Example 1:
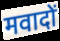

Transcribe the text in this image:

मवादों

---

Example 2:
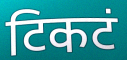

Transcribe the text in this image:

टिकटं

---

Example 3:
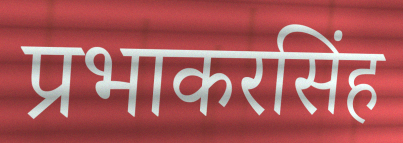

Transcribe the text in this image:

प्रभाकरसिंह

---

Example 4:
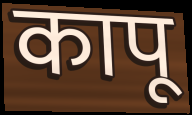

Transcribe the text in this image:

कापू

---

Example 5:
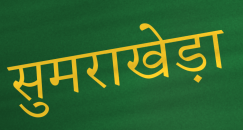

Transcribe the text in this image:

सुमराखेड़ा